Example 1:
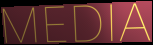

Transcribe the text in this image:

MEDIA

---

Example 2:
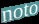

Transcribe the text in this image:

noto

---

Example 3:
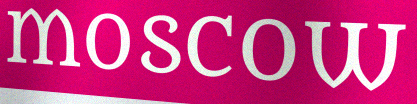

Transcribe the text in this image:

moscow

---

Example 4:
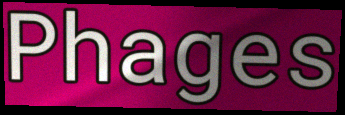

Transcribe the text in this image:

Phages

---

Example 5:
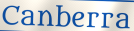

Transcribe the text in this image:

Canberra